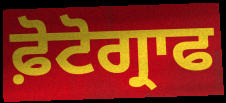
ਫ਼ੋਟੋਗ੍ਰਾਫ